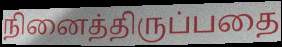
நினைத்திருப்பதை